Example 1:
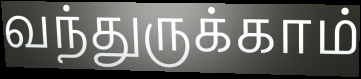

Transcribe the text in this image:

வந்துருக்காம்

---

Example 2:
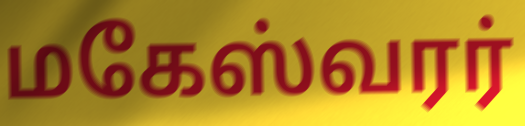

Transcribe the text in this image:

மகேஸ்வரர்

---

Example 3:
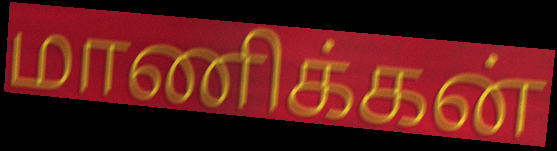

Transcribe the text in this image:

மாணிக்கன்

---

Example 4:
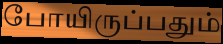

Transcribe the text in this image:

போயிருப்பதும்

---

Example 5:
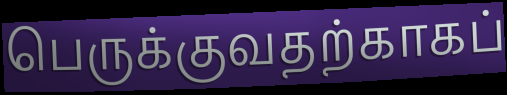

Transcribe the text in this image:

பெருக்குவதற்காகப்